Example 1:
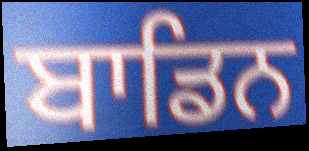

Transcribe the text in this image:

ਬਾਡਿਨ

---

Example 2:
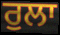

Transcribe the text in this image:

ਰੁਲਾ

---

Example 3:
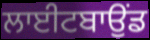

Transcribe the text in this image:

ਲਾਈਟਬਾਉਂਡ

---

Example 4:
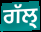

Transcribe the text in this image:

ਗੱਲ੍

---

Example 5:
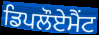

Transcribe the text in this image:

ਡਿਪਲੌਏਮੈਂਟ